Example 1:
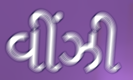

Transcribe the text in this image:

વીંઝી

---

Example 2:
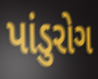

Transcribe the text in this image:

પાંડુરોગ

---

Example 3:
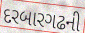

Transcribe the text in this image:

દરબારગઢની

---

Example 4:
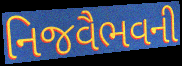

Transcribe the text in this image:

નિજવૈભવની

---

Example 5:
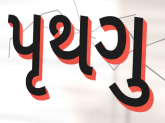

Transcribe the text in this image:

પૃથગુ